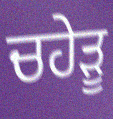
ਚਹੇੜੂ